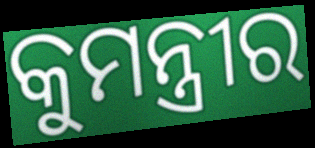
କୁମନ୍ତ୍ରୀର